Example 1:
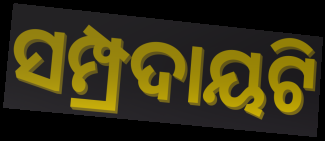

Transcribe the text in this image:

ସମ୍ପ୍ରଦାୟଟି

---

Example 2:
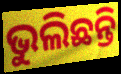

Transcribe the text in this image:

ଭୁଲିଛନ୍ତି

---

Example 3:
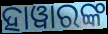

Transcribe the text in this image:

ହାୱାରଙ୍କ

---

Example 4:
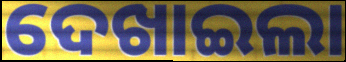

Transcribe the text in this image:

ଦେଖାଇଲା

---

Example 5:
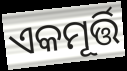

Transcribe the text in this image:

ଏକମୂର୍ତ୍ତି